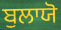
ਬੁਲਾਯੋ